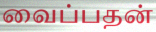
வைப்பதன்